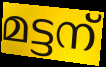
മട്ടന്